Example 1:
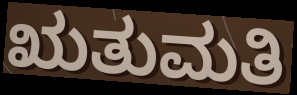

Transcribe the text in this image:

ಋತುಮತಿ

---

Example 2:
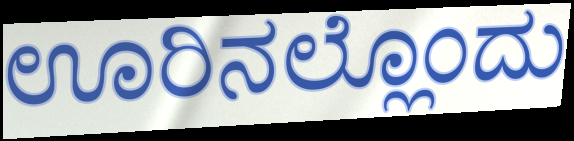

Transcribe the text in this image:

ಊರಿನಲ್ಲೊಂದು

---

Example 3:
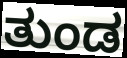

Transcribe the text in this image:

ತುಂಡ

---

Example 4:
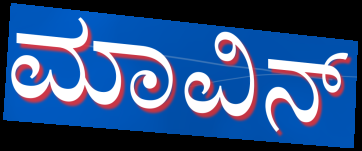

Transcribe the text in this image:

ಮಾವಿನ್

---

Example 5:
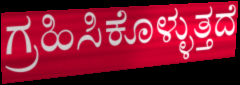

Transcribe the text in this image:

ಗ್ರಹಿಸಿಕೊಳ್ಳುತ್ತದೆ